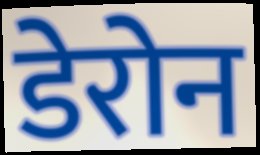
डेरोन